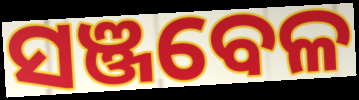
ସଞ୍ଜବେଳ